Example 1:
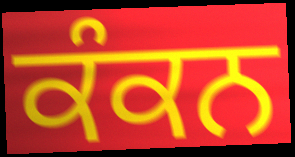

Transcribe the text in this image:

ਕੰਕਨ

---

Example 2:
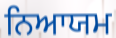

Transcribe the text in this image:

ਨਿਆਯਮ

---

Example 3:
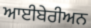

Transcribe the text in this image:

ਆਈਬੇਰੀਅਨ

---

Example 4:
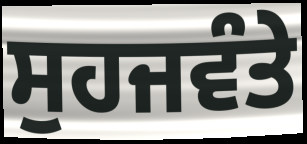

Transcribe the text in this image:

ਸੁਹਜਵੰਤੇ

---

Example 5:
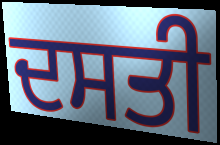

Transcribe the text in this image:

ਦਸਤੀ